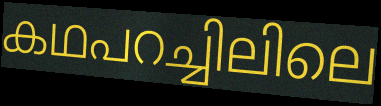
കഥപറച്ചിലിലെ